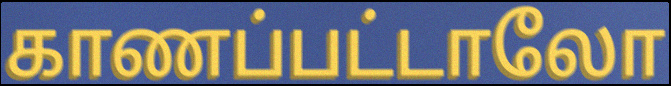
காணப்பட்டாலோ